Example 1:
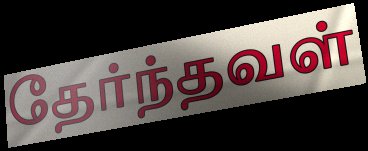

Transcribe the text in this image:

தேர்ந்தவள்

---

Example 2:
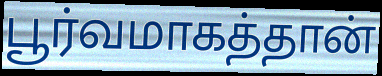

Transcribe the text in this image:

பூர்வமாகத்தான்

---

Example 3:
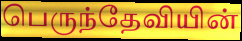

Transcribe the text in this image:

பெருந்தேவியின்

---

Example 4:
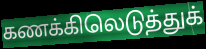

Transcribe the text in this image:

கணக்கிலெடுத்துக்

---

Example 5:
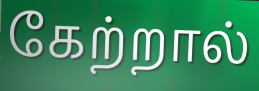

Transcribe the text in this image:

கேற்றால்